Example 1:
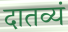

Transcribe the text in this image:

दातव्यं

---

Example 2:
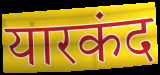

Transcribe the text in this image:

यारकंद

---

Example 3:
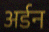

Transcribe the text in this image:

अर्डन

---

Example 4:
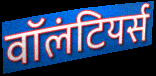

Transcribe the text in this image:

वॉलंटियर्स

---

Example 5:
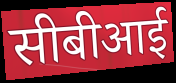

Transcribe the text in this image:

सीबीआई